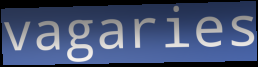
vagaries